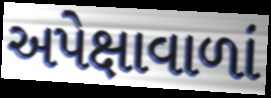
અપેક્ષાવાળાં